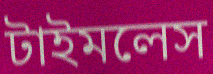
টাইমলেস